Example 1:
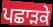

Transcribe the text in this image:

ਪਛਾੜਕੇ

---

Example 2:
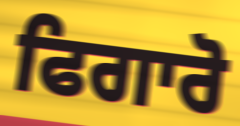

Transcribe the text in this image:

ਫਿਗਾਰੋ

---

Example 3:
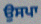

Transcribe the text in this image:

ਉਸਪਾ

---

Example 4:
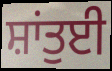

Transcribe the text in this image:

ਸ਼ਾਂਤੁਈ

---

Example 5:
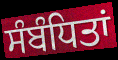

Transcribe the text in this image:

ਸੰਬੰਧਿਤਾਂ